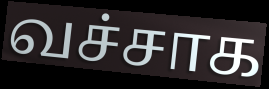
வச்சாக